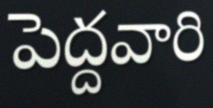
పెద్దవారి